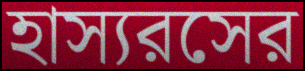
হাস্যরসের